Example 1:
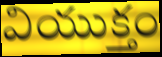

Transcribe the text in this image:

వియుక్తం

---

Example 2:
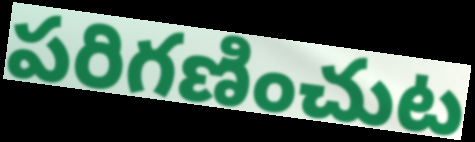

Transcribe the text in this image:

పరిగణించుట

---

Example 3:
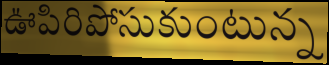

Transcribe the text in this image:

ఊపిరిపోసుకుంటున్న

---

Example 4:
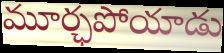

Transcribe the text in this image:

మూర్ఛపోయాడు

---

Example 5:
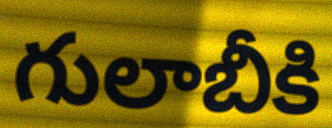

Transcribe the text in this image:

గులాబీకి